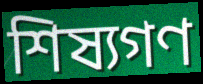
শিষ্যগণ